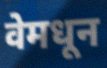
वेमधून